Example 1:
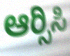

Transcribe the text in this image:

ಆರ್‍ಸಿಸಿ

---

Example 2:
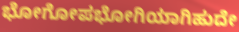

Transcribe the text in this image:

ಭೋಗೋಪಭೋಗಿಯಾಗಿಹುದೇ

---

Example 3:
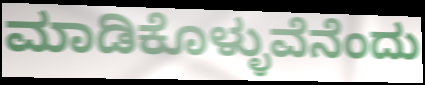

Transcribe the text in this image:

ಮಾಡಿಕೊಳ್ಳುವೆನೆಂದು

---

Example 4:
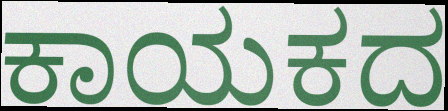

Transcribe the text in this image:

ಕಾಯಕದ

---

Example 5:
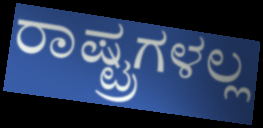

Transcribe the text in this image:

ರಾಷ್ಟ್ರಗಳಲ್ಲ